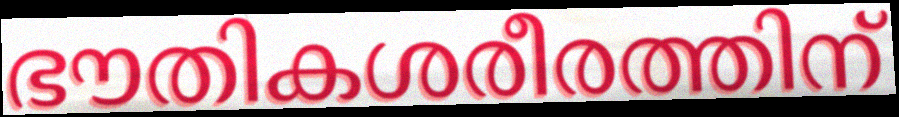
ഭൗതികശരീരത്തിന്